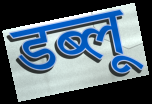
डब्लू